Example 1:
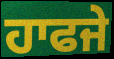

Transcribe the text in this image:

ਹਾਫਜੇ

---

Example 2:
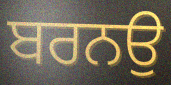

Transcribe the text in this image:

ਬਰਨਉ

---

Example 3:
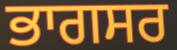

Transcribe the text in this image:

ਭਾਗਸਰ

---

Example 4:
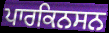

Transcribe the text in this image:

ਪਾਰਕਿਨਸਨ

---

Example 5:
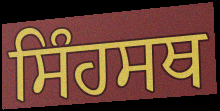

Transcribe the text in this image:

ਸਿੰਹਸਥ